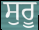
ਸੁਰੂ